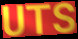
UTS